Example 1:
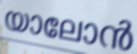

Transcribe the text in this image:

യാലോൻ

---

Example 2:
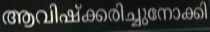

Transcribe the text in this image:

ആവിഷ്ക്കരിച്ചുനോക്കി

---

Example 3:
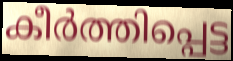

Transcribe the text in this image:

കീർത്തിപ്പെട്ട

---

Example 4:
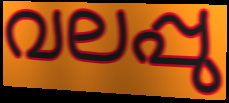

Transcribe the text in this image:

വലപ്പു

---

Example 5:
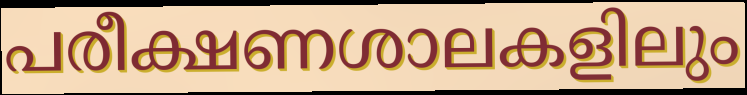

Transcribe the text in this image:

പരീക്ഷണശാലകളിലും